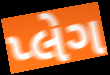
પ્લેગ